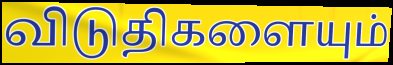
விடுதிகளையும்